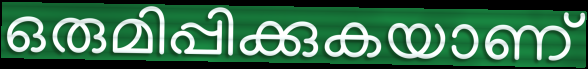
ഒരുമിപ്പിക്കുകയാണ്